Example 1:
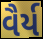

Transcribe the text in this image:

વૈર્ય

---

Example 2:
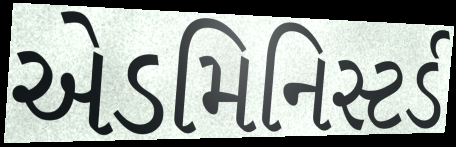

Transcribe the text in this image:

એડમિનિસ્ટર્ડ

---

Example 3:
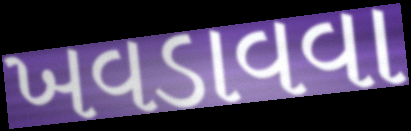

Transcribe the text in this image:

ખવડાવવા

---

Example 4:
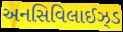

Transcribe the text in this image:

અનસિવિલાઈઝ્ડ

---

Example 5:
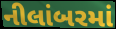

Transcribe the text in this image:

નીલાંબરમાં